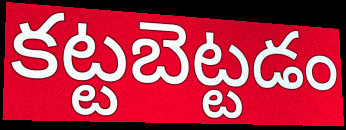
కట్టబెట్టడం